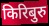
किरिबुरु